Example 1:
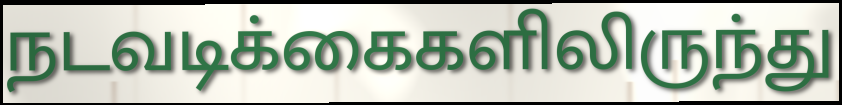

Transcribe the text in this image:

நடவடிக்கைகளிலிருந்து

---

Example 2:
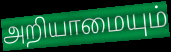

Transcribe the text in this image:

அறியாமையும்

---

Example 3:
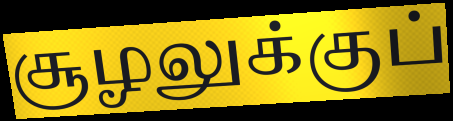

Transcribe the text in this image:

சூழலுக்குப்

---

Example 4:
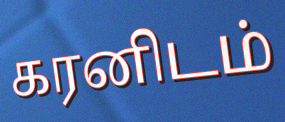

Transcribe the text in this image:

கரனிடம்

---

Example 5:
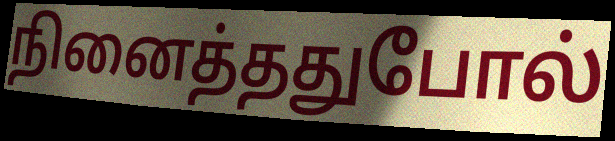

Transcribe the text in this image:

நினைத்ததுபோல்